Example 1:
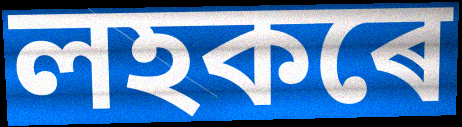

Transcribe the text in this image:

লহকৰে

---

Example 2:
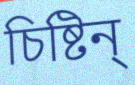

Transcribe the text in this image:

চিষ্টিন্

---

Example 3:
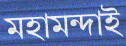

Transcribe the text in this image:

মহামন্দাই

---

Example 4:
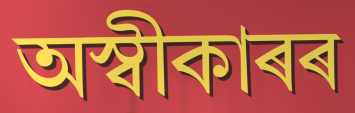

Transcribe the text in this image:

অস্বীকাৰৰ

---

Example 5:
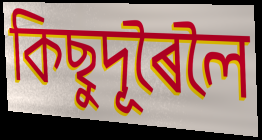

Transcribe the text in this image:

কিছুদূৰৈলৈ